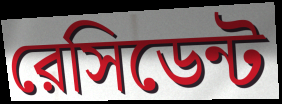
রেসিডেন্ট